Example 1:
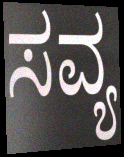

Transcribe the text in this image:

ಸವ್ಯ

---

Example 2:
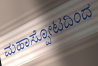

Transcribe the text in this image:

ಮಹಾಸ್ಪೋಟದಿಂದ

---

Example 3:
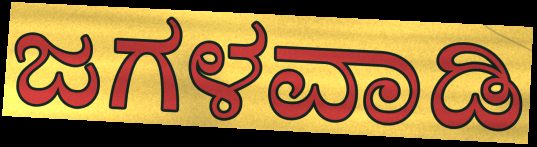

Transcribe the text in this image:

ಜಗಳವಾಡಿ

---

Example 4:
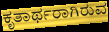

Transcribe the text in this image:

ಕೃತಾರ್ಥರಾಗಿರುವ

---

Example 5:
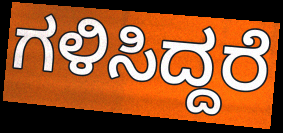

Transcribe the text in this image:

ಗಳಿಸಿದ್ದರೆ